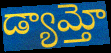
డ్యామ్తో